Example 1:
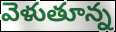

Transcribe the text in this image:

వెళుతూన్న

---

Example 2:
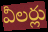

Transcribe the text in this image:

వీలర్లు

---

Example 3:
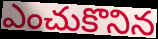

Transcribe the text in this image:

ఎంచుకొనిన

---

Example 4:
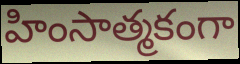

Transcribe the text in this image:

హింసాత్మకంగా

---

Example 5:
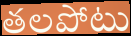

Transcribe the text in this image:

తలపోటు